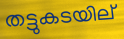
തട്ടുകടയില്